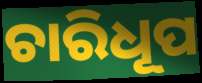
ଚାରିଧୂପ